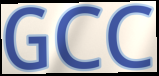
GCC